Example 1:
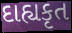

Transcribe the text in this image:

દાહ્યકૃત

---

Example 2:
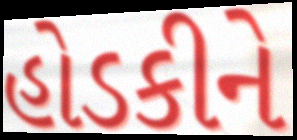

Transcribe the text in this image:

હોડકીને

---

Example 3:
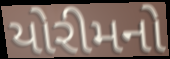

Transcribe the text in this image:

યોરીમનો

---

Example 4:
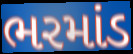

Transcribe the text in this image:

ભરમાંડ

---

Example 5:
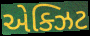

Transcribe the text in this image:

એક્ઝિટ